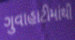
ગુવાહાટીમાંથી